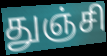
துஞ்சி